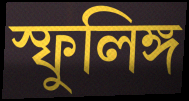
স্ফুলিঙ্গ